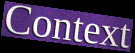
Context